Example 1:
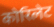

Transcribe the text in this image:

कोरिलेट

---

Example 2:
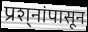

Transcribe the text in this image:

प्रश्नांपासून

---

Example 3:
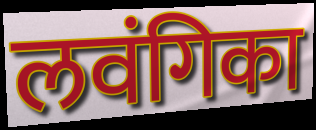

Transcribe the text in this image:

लवंगिका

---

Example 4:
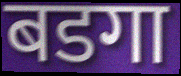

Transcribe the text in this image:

बडगा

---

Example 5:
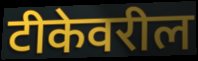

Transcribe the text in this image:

टीकेवरील